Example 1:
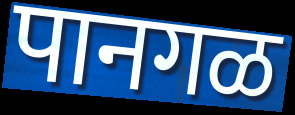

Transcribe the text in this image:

पानगळ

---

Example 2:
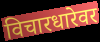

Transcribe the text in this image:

विचारधारेवर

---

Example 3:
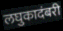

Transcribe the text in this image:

लघुकादंबरी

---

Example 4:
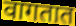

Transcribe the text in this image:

वागतात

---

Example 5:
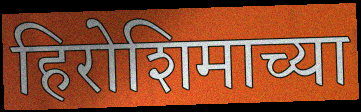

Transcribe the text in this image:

हिरोशिमाच्या